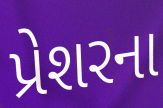
પ્રેશરના